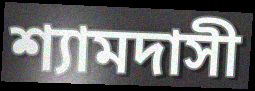
শ্যামদাসী